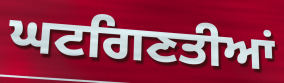
ਘਟਗਿਣਤੀਆਂ